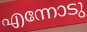
എന്നോടു